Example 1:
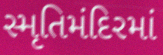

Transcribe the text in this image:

સ્મૃતિમંદિરમાં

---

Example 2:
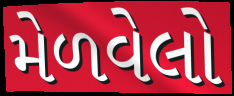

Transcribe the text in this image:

મેળવેલો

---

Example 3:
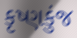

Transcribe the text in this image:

કૃષ્ણકુંજ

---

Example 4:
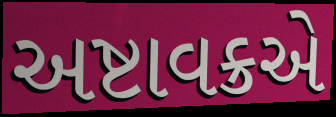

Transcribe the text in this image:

અષ્ટાવક્રએ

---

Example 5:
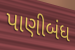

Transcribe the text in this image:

પાણીબંધ